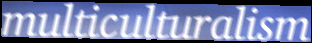
multiculturalism